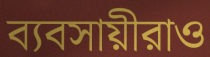
ব্যবসায়ীরাও